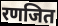
रणजित